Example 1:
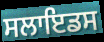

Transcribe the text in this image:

ਸਲਾਇਡਸ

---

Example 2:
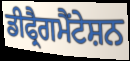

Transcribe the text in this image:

ਡੀਫ੍ਰੈਗਮੈਂਟੇਸ਼ਨ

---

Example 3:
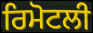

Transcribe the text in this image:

ਰਿਮੋਟਲੀ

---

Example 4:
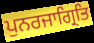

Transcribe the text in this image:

ਪੁਨਰਜਾਗ੍ਰਿਤਿ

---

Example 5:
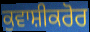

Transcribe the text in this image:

ਕੁਵਾਸ਼ੀਕਰੋਰ